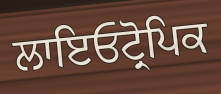
ਲਾਇਓਟ੍ਰੋਪਿਕ